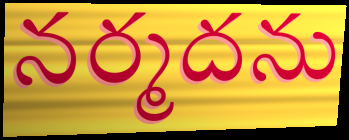
నర్మదను